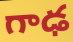
గాఢ